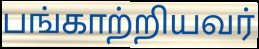
பங்காற்றியவர்